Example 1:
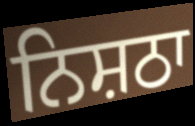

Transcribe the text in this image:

ਨਿਸ਼ਠਾ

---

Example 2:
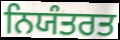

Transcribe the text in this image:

ਨਿਯੰਤਰਤ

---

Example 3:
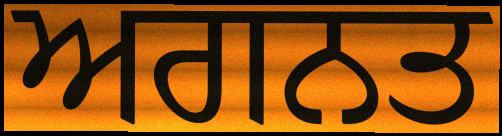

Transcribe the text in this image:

ਅਗਨਤ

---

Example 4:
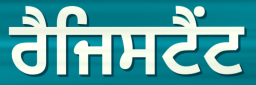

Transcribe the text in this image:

ਰੈਜਿਸਟੈਂਟ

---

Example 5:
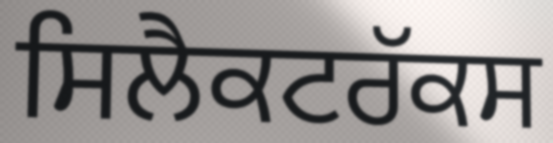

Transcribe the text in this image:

ਸਿਲੈਕਟਰੱਕਸ